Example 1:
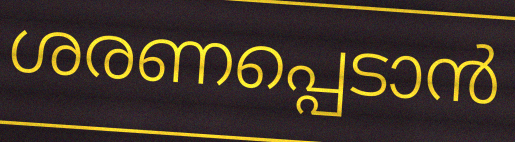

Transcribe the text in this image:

ശരണപ്പെടാൻ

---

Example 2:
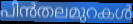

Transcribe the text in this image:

പിൻതലമുറകൾ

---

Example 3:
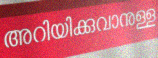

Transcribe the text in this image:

അറിയിക്കുവാനുള്ള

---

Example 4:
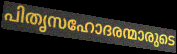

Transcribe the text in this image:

പിതൃസഹോദരന്മാരുടെ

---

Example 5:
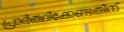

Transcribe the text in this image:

പ്രാർത്ഥിക്കേണ്ടതിന്